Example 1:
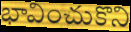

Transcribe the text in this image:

భావించుకొని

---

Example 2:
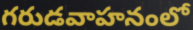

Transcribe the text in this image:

గరుడవాహనంలో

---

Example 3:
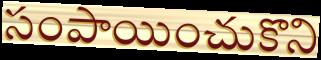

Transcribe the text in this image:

సంపాయించుకొని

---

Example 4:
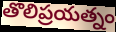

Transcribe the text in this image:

తొలిప్రయత్నం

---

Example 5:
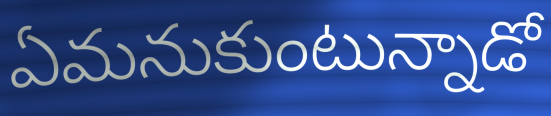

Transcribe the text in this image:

ఏమనుకుంటున్నాడో